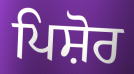
ਪਿਸ਼ੋਰ